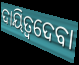
ଦାୟିତ୍ୱଦେବା